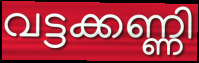
വട്ടക്കണ്ണി